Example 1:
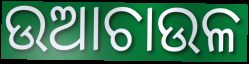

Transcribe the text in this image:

ଉଆଚାଉଳ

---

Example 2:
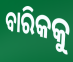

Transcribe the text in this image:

ବାରିକକୁ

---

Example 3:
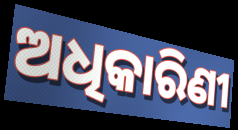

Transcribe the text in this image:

ଅଧିକାରିଣୀ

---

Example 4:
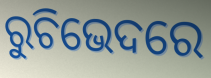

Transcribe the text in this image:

ରୁଚିଭେଦରେ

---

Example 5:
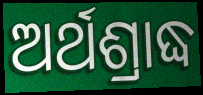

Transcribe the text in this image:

ଅର୍ଥଶ୍ରାଦ୍ଧ